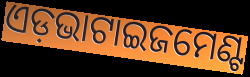
ଏଡ଼ଭାଟାଇଜମେଣ୍ଟ